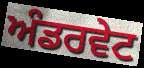
ਅੰਡਰਵੇਟ